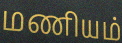
மணியம்